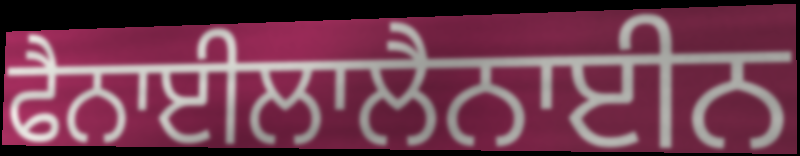
ਫੈਨਾਈਲਾਲੈਨਾਈਨ